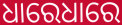
ଧାରେଧାରେ